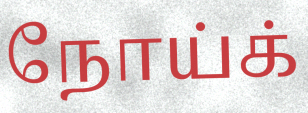
நோய்க்